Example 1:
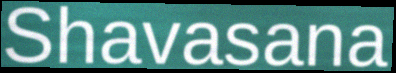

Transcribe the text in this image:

Shavasana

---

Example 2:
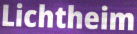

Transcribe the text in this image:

Lichtheim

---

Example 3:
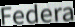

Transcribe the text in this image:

Federa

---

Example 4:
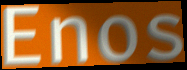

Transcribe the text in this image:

Enos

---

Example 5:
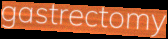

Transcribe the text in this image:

gastrectomy